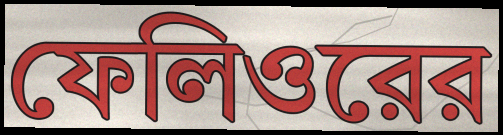
ফেলিওরের